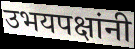
उभयपक्षांनी